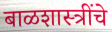
बाळशास्त्रींचे